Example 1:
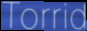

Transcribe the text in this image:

Torrid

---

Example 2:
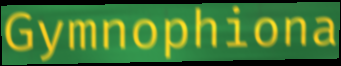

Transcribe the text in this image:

Gymnophiona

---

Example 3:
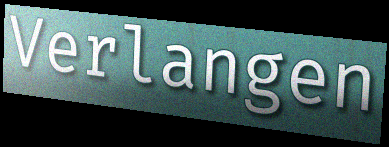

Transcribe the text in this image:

Verlangen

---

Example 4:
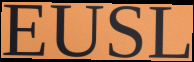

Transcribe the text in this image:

EUSL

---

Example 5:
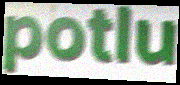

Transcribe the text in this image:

potlu